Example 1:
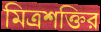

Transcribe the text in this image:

মিত্রশক্তির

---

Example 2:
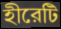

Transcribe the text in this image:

হীরেটি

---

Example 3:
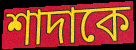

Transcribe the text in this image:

শাদাকে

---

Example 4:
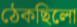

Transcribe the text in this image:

ঠেকছিলো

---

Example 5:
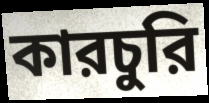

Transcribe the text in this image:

কারচুরি